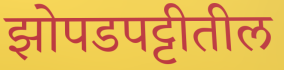
झोपडपट्टीतील